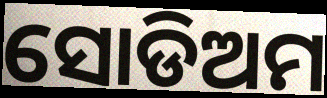
ସୋଡିଅମ